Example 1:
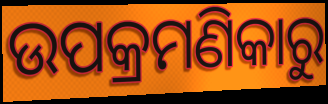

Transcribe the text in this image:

ଉପକ୍ରମଣିକାରୁ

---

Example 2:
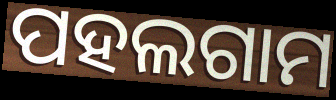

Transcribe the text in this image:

ପହଲଗାମ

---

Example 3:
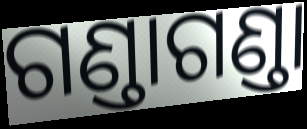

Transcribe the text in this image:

ଗଣ୍ଡାଗଣ୍ଡା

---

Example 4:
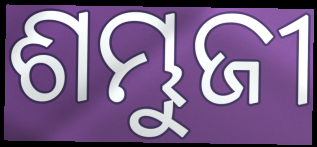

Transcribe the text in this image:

ଶମ୍ଭୁଜୀ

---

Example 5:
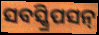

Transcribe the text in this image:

ସବସ୍କ୍ରିପସନ୍